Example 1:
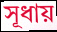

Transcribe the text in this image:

সূধায়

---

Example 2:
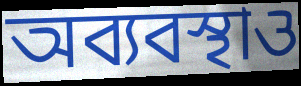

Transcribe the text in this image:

অব্যবস্থাও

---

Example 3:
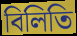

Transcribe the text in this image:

বিলিতি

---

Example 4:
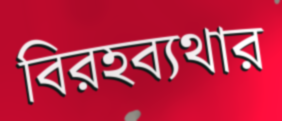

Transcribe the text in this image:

বিরহব্যথার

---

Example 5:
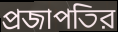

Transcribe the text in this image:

প্রজাপতির